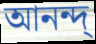
আনন্দ্